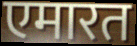
एमारत